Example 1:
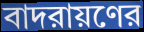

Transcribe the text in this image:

বাদরায়ণের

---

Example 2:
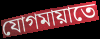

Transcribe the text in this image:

যোগমায়াতে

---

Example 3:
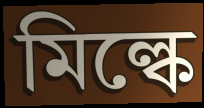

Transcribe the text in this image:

মিল্কে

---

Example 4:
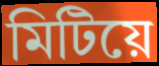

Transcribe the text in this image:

মিটিয়ে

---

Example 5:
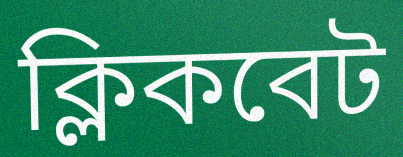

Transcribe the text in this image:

ক্লিকবেট